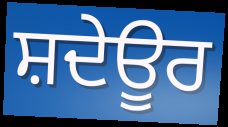
ਸ਼ਦੇਊਰ